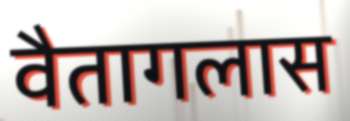
वैतागलास